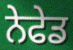
ਨੇਫੇਡ